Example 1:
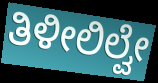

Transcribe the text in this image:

ತಿಳೀಲಿಲ್ವೇ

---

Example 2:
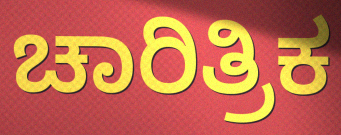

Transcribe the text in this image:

ಚಾರಿತ್ರಿಕ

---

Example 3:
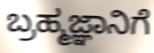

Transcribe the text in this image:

ಬ್ರಹ್ಮಜ್ಞಾನಿಗೆ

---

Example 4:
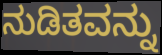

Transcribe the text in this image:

ನುಡಿತವನ್ನು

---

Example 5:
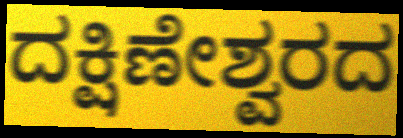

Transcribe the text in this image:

ದಕ್ಷಿಣೇಶ್ವರದ